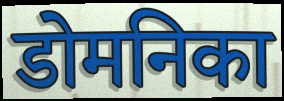
डोमनिका